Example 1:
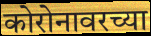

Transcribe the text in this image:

कोरोनावरच्या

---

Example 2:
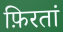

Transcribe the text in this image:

फ़िरतां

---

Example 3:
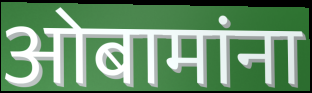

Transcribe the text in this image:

ओबामांना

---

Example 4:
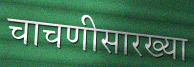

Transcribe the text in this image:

चाचणीसारख्या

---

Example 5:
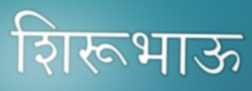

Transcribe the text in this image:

शिरूभाऊ